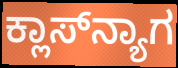
ಕ್ಲಾಸ್‌ನ್ಯಾಗ